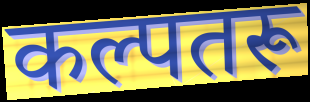
कल्पतरू